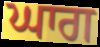
ਘਾਗ